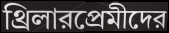
থ্রিলারপ্রেমীদের